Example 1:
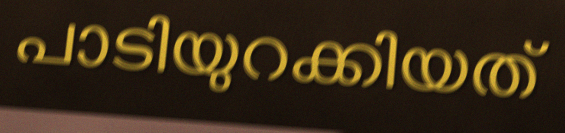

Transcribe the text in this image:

പാടിയുറക്കിയത്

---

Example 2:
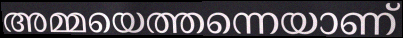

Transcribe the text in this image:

അമ്മയെത്തന്നെയാണ്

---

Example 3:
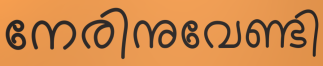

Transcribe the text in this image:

നേരിനുവേണ്ടി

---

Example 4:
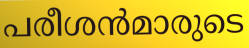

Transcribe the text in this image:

പരീശൻമാരുടെ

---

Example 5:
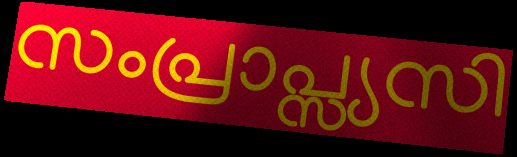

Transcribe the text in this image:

സംപ്രാപ്സ്യസി